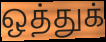
ஒத்துக்